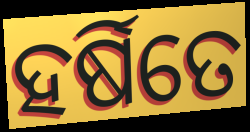
ହର୍ଷିତେ